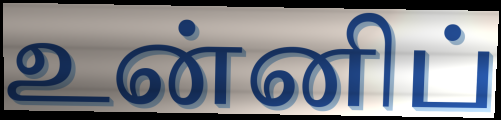
உன்னிப்